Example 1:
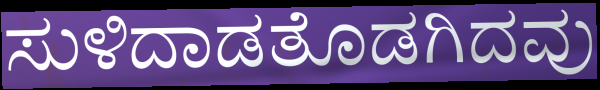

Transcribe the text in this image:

ಸುಳಿದಾಡತೊಡಗಿದವು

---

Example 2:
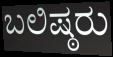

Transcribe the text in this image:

ಬಲಿಷ್ಠರು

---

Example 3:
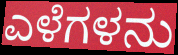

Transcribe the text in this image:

ಎಳೆಗಳನು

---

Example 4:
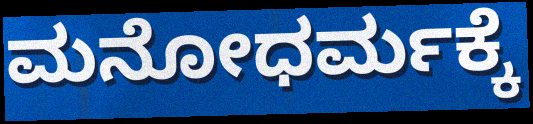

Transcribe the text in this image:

ಮನೋಧರ್ಮಕ್ಕೆ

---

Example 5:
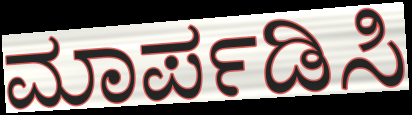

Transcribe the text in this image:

ಮಾರ್ಪಡಿಸಿ